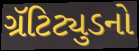
ગ્રૅટિટ્યુડનો